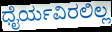
ಧೈರ್ಯವಿರಲಿಲ್ಲ